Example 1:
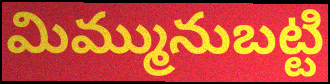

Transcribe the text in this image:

మిమ్మునుబట్టి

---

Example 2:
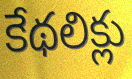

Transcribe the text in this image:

కేథలిక్లు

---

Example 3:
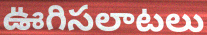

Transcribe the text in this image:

ఊగిసలాటలు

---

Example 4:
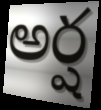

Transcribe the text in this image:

అర్ష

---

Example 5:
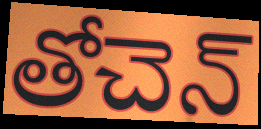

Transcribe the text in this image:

తోచెన్